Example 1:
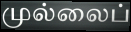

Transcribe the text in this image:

முல்லைப்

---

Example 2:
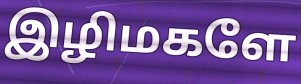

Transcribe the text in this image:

இழிமகளே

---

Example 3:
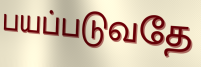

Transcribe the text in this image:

பயப்படுவதே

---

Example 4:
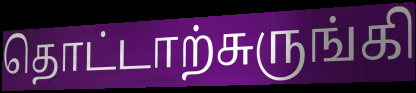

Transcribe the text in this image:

தொட்டாற்சுருங்கி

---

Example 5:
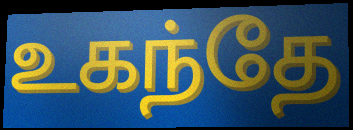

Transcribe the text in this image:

உகந்தே